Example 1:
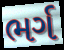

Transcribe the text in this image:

ભર્ગ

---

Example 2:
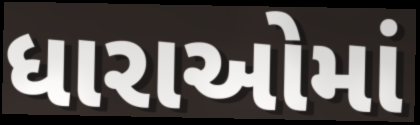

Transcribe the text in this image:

ધારાઓમાં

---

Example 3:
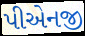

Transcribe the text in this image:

પીએનજી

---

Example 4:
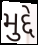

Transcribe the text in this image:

મુદ્દે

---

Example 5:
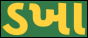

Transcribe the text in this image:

ડખા